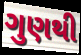
ગુણથી